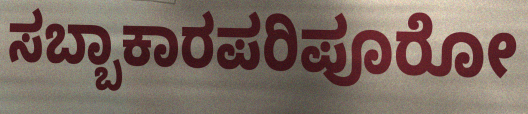
ಸಬ್ಬಾಕಾರಪರಿಪೂರೋ